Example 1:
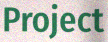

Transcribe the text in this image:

Project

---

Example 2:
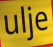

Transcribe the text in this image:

ulje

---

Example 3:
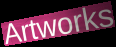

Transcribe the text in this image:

Artworks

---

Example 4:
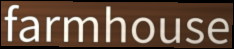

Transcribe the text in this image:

farmhouse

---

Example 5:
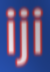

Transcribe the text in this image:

iji